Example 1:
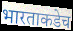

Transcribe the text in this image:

भारताकडेच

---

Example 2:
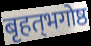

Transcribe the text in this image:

बृहत्‌भगोष्ठ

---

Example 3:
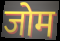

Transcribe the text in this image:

जोम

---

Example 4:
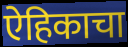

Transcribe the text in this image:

ऐहिकाचा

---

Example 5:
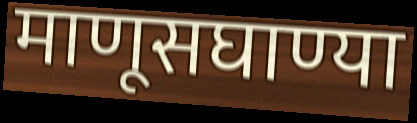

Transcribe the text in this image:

माणूसघाण्या